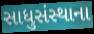
સાધુસંસ્થાના